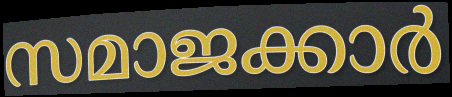
സമാജക്കാർ